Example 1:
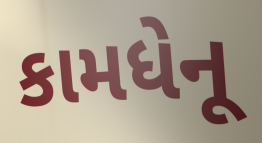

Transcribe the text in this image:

કામધેનૂ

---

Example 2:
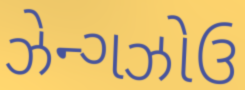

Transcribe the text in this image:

ઝેન્ગઝોઉ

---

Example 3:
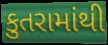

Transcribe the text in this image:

કુતરામાંથી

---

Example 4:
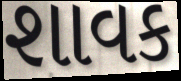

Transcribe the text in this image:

શાવક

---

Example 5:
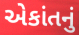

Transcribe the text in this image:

એકાંતનું